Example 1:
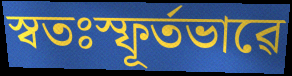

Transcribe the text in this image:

স্বতঃস্ফূৰ্তভাৱে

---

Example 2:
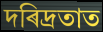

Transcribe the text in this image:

দৰিদ্ৰতাত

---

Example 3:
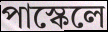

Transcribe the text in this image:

পাস্কেলে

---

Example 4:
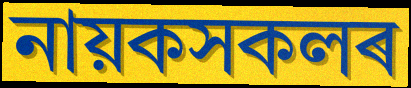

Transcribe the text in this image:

নায়কসকলৰ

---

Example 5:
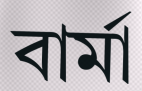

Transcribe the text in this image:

বাৰ্মা